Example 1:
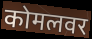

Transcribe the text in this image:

कोमलवर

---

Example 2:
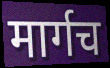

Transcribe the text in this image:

मार्गच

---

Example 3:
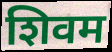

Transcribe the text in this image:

शिवम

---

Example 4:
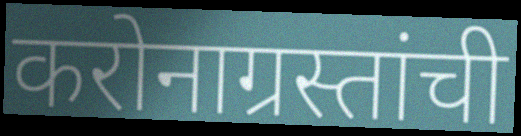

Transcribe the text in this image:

करोनाग्रस्तांची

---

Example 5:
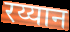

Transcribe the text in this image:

रय्यान